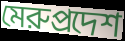
মেরুপ্রদেশ